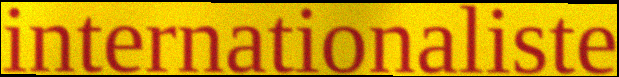
internationaliste